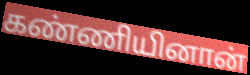
கண்ணியினான்